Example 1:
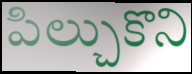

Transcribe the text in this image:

పిల్చుకొని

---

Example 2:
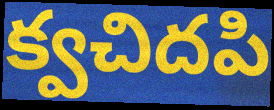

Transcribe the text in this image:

క్వచిదపి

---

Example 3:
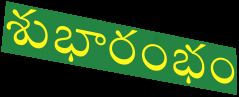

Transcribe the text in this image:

శుభారంభం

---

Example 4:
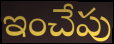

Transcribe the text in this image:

ఇంచేపు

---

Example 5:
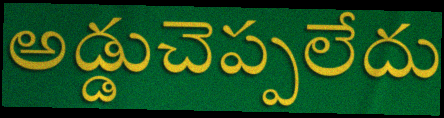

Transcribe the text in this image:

అడ్డుచెప్పలేదు